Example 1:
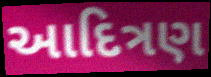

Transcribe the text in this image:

આદિત્રણ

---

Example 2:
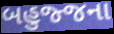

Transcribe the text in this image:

બહુજ્જના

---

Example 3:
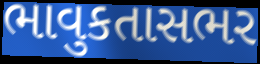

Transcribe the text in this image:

ભાવુકતાસભર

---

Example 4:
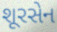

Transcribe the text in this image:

શૂરસેન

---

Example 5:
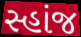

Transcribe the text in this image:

સ્હાંજ